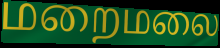
மறைமலை